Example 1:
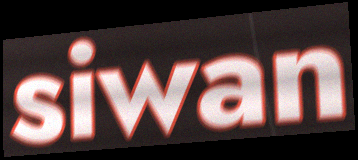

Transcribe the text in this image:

siwan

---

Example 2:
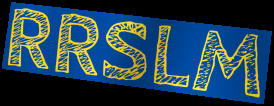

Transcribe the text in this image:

RRSLM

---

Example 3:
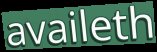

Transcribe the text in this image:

availeth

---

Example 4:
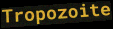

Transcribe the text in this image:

Tropozoite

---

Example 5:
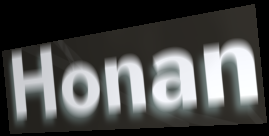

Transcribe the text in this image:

Honan